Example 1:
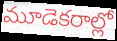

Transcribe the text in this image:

మూడెకరాల్లో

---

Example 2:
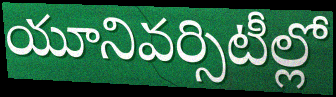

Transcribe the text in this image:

యూనివర్సిటీల్లో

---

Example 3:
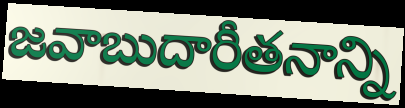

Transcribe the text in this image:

జవాబుదారీతనాన్ని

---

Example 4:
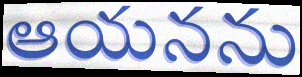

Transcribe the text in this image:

ఆయనను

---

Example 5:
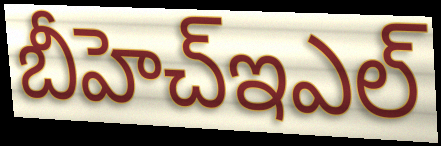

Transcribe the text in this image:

బీహెచ్ఇఎల్